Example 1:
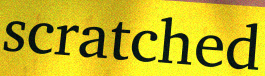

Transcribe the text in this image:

scratched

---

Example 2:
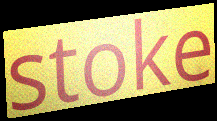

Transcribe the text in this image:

stoke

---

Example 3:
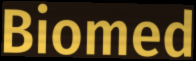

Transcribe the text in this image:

Biomed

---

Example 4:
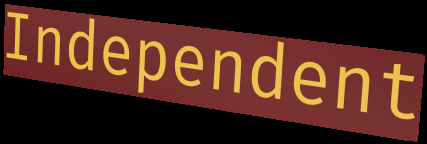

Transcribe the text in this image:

Independent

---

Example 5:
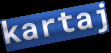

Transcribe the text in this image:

kartaj